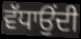
ਵੱਧਾਉਂਦੀ